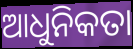
ଆଧୁନିକତା